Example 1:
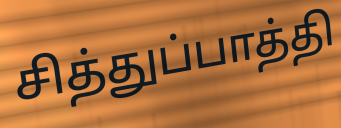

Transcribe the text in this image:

சித்துப்பாத்தி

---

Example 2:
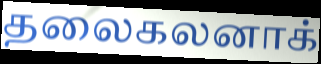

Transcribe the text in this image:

தலைகலனாக்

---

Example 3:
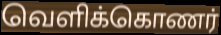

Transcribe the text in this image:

வெளிக்கொணர்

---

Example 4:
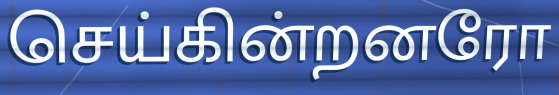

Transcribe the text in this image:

செய்கின்றனரோ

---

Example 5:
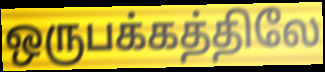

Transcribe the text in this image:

ஒருபக்கத்திலே